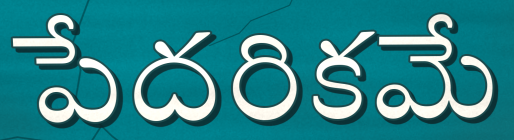
పేదరికమే